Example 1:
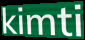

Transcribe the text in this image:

kimti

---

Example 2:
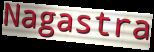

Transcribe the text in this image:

Nagastra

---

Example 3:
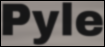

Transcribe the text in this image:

Pyle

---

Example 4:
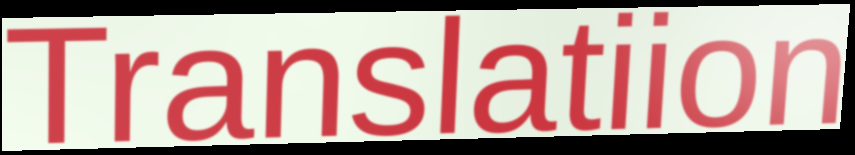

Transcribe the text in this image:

Translatiion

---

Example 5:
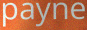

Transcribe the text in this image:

payne